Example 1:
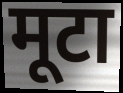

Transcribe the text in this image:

मूटा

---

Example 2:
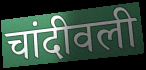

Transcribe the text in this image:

चांदीवली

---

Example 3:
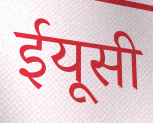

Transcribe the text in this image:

ईयूसी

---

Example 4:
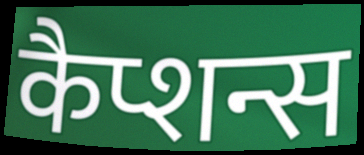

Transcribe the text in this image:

कैप्शन्स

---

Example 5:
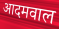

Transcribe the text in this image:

आदमवाल